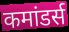
कमांडर्स